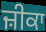
ਜ਼ੀਕਾ